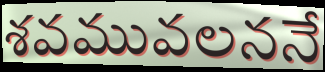
శవమువలననే